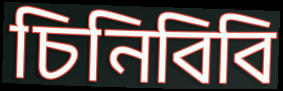
চিনিবিবি